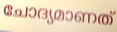
ചോദ്യമാണത്